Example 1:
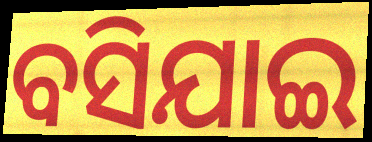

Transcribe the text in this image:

ବସିଯାଇ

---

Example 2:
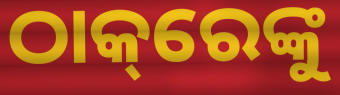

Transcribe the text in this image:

ଠାକ୍‌ରେଙ୍କୁ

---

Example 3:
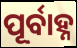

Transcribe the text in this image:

ପୂର୍ବାହ୍ନ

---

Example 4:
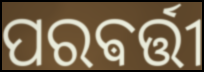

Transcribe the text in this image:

ପରଵର୍ତ୍ତୀ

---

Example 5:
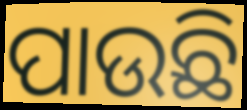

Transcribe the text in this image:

ପାଉଛି